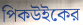
পিকউইকের